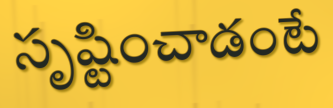
సృష్టించాడంటే